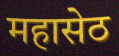
महासेठ